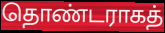
தொண்டராகத்